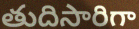
తుదిసారిగా